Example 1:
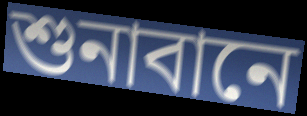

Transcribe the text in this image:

শুনাবানে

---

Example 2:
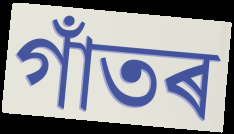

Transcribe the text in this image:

গাঁতৰ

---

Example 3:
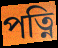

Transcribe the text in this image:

পত্নি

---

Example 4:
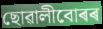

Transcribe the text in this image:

ছোৱালীবোৰৰ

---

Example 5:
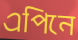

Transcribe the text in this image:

এপিনে